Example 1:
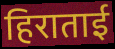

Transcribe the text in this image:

हिराताई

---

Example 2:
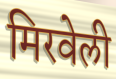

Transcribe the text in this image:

मिरवेली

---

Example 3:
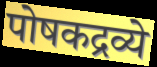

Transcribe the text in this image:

पोषकद्रव्ये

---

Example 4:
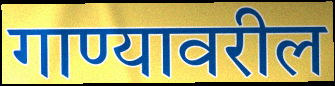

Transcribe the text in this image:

गाण्यावरील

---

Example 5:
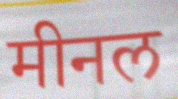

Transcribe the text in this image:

मीनल